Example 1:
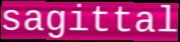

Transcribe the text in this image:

sagittal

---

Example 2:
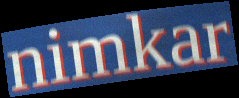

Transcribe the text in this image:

nimkar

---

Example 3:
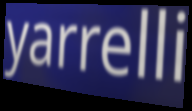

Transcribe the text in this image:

yarrelli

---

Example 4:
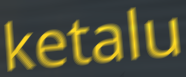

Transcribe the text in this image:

ketalu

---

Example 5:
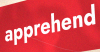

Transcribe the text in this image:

apprehend